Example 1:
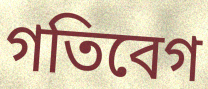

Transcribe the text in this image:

গতিবেগ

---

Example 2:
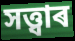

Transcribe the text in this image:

সত্ত্বাৰ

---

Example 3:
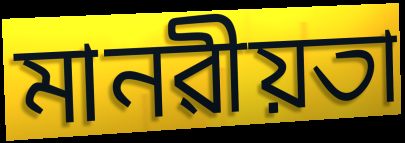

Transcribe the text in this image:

মানৱীয়তা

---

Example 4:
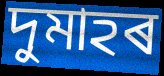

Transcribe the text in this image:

দুমাহৰ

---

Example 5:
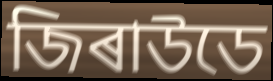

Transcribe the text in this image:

জিৰাউডে